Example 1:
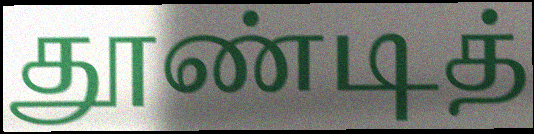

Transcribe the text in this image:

தூண்டித்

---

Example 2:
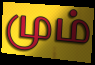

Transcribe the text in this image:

மும்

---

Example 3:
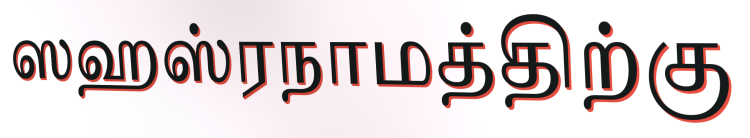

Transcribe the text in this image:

ஸஹஸ்ரநாமத்திற்கு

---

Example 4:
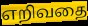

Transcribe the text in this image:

எறிவதை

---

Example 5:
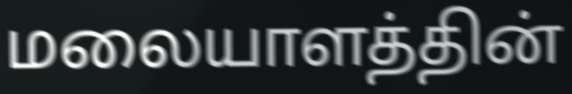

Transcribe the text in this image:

மலையாளத்தின்